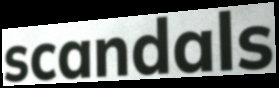
scandals